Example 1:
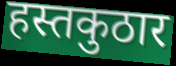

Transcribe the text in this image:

हस्तकुठार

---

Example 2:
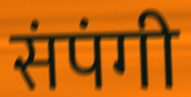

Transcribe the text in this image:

संपंगी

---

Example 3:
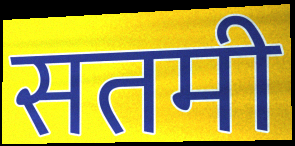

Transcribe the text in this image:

सतमी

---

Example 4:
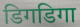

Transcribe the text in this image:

डिगडिगा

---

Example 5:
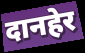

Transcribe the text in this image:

दानहेर